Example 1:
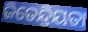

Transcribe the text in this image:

ଜିତେନ୍ଦ୍ରିୟତା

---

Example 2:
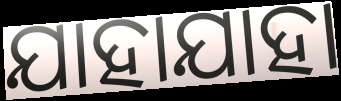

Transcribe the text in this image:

ଯାହାଯାହା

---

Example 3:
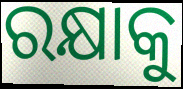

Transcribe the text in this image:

ରକ୍ଷାକୁ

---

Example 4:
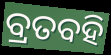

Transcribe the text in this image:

ବ୍ରତବହି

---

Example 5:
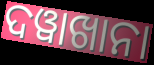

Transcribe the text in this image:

ଦୱାଖାନା